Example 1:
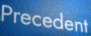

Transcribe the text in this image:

Precedent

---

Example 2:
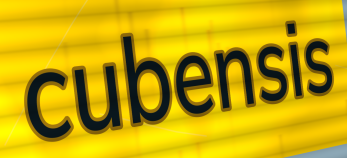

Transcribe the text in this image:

cubensis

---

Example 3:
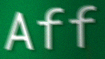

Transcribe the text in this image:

Aff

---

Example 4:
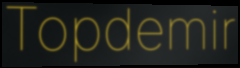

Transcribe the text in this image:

Topdemir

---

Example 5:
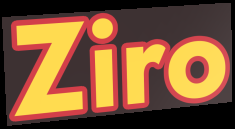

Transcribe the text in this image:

Ziro